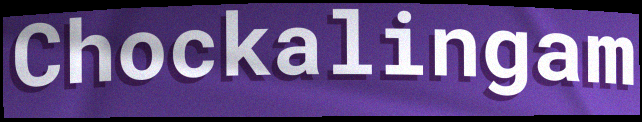
Chockalingam